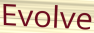
Evolve